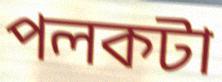
পলকটা